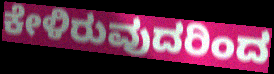
ಕೇಳಿರುವುದರಿಂದ